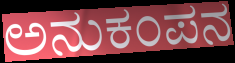
ಅನುಕಂಪನ